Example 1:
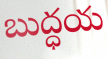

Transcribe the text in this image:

బుద్ధయ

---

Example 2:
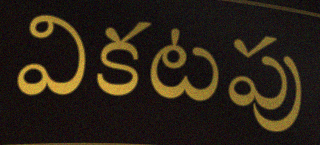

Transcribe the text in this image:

వికటపు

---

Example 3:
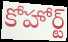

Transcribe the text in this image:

కోహోర్ట్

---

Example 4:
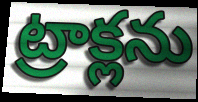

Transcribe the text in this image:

ట్రాక్లను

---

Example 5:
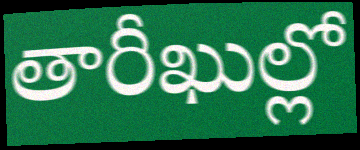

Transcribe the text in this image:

తారీఖుల్లో